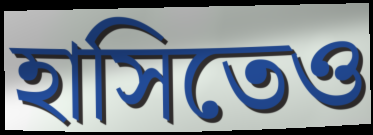
হাসিতেও